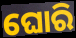
ଘୋରି